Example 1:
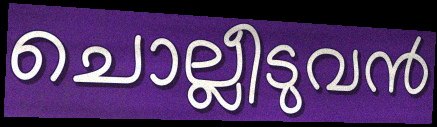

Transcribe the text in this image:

ചൊല്ലീടുവൻ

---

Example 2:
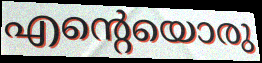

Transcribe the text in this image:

എന്റെയൊരു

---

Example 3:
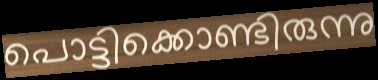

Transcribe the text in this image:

പൊട്ടിക്കൊണ്ടിരുന്നു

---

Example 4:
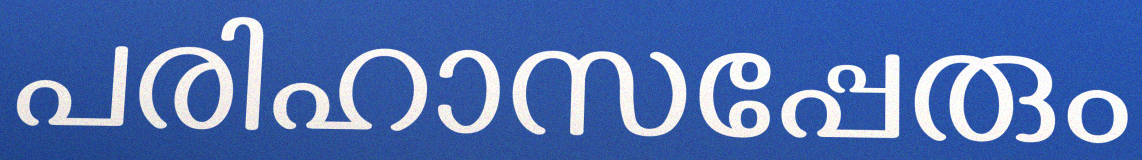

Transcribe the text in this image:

പരിഹാസപ്പേരും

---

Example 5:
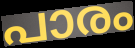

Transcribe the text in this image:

പാരം